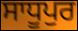
ਸਾਧੂਪੁਰ